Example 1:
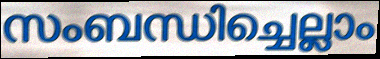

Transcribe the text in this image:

സംബന്ധിച്ചെല്ലാം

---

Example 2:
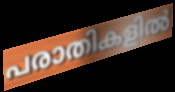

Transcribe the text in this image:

പരാതികളിൽ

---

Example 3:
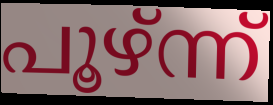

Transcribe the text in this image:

പൂഴ്ന്ന്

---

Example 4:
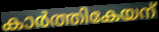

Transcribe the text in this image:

കാർത്തികേയന്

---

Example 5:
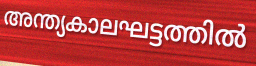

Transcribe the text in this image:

അന്ത്യകാലഘട്ടത്തിൽ